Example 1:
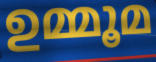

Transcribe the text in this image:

ഉമ്മൂമ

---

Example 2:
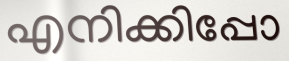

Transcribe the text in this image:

എനിക്കിപ്പോ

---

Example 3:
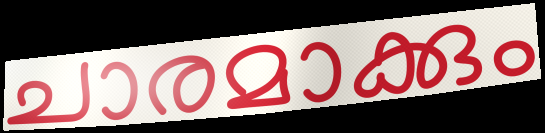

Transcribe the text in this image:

ചാരമാക്കും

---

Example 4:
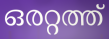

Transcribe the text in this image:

ഒരറ്റത്ത്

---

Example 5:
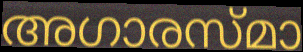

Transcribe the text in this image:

അഗാരസ്മാ